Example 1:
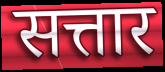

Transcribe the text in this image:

सत्तार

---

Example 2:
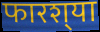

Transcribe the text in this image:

फारश्या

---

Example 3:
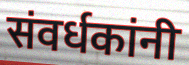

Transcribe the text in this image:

संवर्धकांनी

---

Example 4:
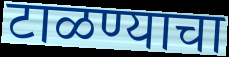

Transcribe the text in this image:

टाळण्याचा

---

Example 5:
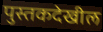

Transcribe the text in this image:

पुस्तकदेखील